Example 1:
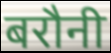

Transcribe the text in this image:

बरौनी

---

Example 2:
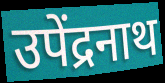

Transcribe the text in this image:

उपेंद्रनाथ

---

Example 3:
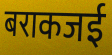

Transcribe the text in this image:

बराकजई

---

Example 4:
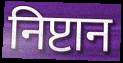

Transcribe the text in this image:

निप्टान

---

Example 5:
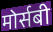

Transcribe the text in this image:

मोर्सबी